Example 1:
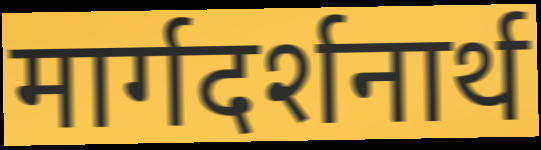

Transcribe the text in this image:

मार्गदर्शनार्थ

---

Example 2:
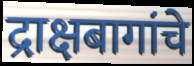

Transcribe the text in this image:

द्राक्षबागांचे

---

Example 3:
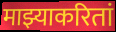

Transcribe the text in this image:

माझ्याकरितां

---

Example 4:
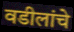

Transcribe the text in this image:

वडीलांचे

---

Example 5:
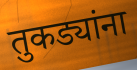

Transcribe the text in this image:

तुकड्यांना